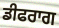
ਡੀਫਰਾਗ